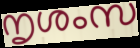
നൃശംസ